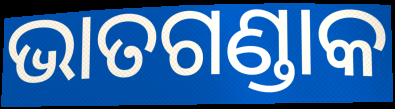
ଭାତଗଣ୍ଡାକ